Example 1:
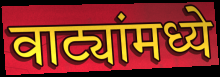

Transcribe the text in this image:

वाट्यांमध्ये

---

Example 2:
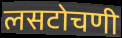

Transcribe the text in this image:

लसटोचणी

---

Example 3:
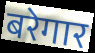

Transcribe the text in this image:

बरेगार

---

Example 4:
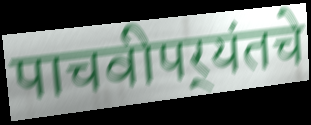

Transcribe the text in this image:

पाचवीपर्यंतचे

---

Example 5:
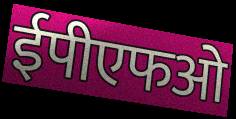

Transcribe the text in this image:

ईपीएफओ